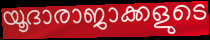
യൂദാരാജാക്കളുടെ